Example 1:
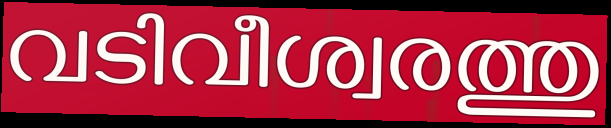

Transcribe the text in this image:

വടിവീശ്വരത്തു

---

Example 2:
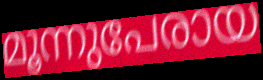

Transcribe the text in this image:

മൂന്നുപേരായ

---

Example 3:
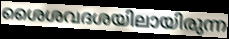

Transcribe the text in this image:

ശൈശവദശയിലായിരുന്ന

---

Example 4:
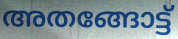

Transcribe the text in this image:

അതങ്ങോട്ട്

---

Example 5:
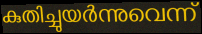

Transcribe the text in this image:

കുതിച്ചുയർന്നുവെന്ന്